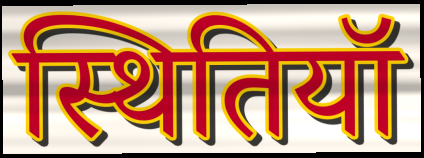
स्थितियॉ